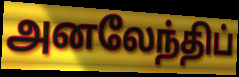
அனலேந்திப்